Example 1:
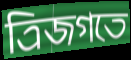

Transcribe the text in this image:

ত্রিজগতে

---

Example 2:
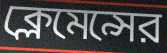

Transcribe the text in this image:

ক্লেমেন্সের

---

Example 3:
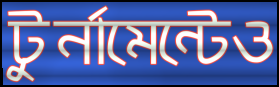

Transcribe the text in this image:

টুর্নামেন্টেও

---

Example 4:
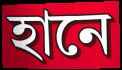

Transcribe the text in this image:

হানে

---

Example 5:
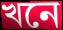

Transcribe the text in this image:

খনে